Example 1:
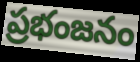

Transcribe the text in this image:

ప్రభంజనం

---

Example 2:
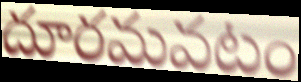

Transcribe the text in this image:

దూరమవటం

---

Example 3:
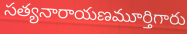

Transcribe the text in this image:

సత్యనారాయణమూర్తిగారు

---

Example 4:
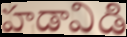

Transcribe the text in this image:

హడావిడి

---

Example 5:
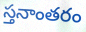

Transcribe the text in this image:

స్తనాంతరం